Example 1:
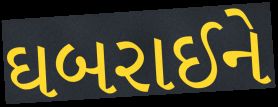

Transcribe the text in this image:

ઘબરાઈને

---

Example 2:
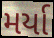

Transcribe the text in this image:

મર્યા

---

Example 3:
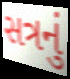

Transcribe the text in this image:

સત્રનું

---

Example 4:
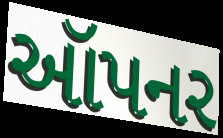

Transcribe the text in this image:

ઑપનર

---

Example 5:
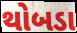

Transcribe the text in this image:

થોબડા